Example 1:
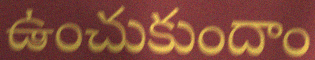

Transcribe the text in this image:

ఉంచుకుందాం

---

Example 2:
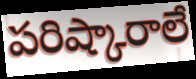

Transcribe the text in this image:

పరిష్కారాలే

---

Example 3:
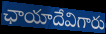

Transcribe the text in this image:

ఛాయాదేవిగారు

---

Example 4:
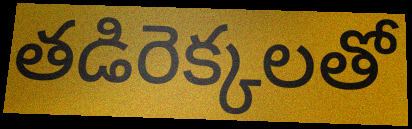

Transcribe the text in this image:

తడిరెక్కలతో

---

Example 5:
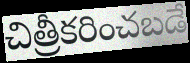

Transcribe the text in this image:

చిత్రీకరించబడే